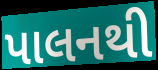
પાલનથી